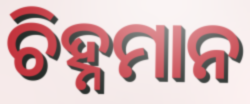
ଚିହ୍ନମାନ